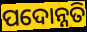
ପଦୋନ୍ନତି